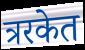
त्ररकेत